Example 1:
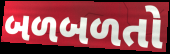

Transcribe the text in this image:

બળબળતો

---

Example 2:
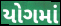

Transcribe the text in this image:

યોગમાં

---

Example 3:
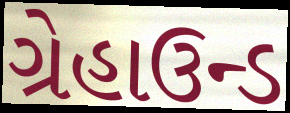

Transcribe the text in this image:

ગ્રેહાઉન્ડ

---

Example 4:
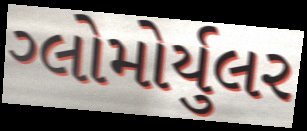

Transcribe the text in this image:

ગ્લોમોર્યુલર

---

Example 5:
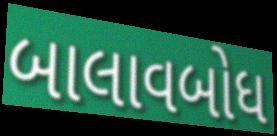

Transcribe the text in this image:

બાલાવબોધ